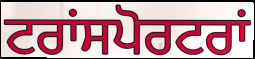
ਟਰਾਂਸਪੋਰਟਰਾਂ